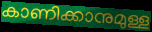
കാണിക്കാനുമുള്ള